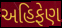
અહિફેણ